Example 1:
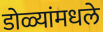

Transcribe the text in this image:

डोळ्यांमधले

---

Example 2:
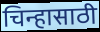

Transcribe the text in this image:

चिन्हासाठी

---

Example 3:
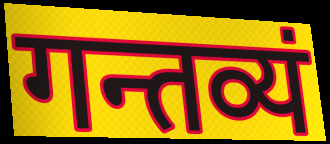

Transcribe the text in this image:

गन्तव्यं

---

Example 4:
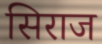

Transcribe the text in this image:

सिराज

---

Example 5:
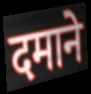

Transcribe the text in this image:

दमाने